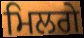
ਮਿਲਗੇ